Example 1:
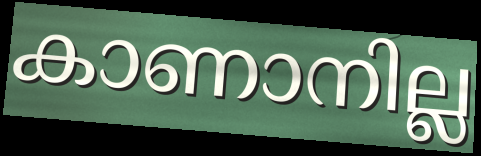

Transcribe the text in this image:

കാണാനില്ല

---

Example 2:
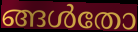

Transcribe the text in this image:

ങ്ങൾതോ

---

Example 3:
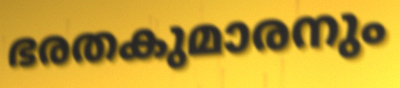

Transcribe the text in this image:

ഭരതകുമാരനും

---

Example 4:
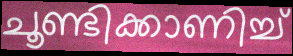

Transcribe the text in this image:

ചൂണ്ടിക്കാണിച്ച്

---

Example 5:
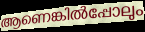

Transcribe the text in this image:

ആണെങ്കിൽപ്പോലും